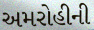
અમરોહીની